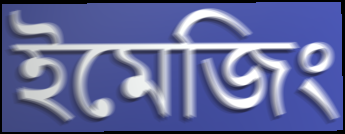
ইমেজিং